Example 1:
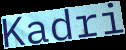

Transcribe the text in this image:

Kadri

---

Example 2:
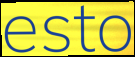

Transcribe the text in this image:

esto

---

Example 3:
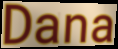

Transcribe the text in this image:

Dana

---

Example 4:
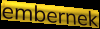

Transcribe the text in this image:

embernek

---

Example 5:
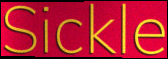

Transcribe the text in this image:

Sickle